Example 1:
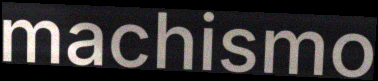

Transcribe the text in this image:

machismo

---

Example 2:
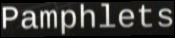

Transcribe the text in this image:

Pamphlets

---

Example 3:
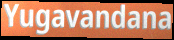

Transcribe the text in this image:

Yugavandana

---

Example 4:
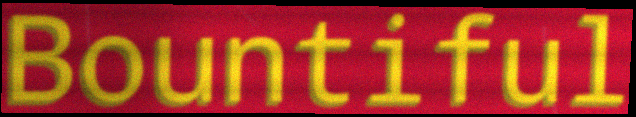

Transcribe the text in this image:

Bountiful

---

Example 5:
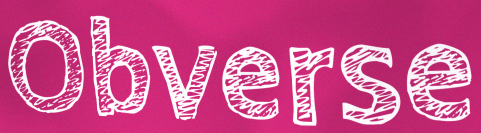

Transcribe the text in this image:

Obverse